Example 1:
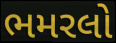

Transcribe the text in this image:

ભમરલો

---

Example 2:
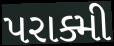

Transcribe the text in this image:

પરાક્મી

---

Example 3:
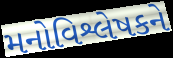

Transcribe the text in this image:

મનોવિશ્લેષકને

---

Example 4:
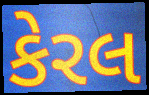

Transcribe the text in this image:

કેરલ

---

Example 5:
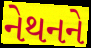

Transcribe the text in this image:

નેથનને